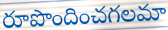
రూపొందించగలమా